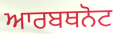
ਆਰਬਥਨੋਟ